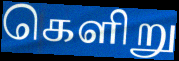
கெளிறு